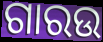
ଗାରଉ